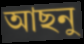
আছনু